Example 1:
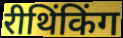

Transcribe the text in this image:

रीथिंकिंग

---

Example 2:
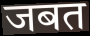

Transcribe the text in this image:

जबत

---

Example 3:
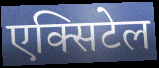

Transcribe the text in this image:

एक्सिटेल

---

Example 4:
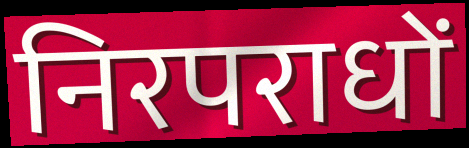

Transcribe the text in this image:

निरपराधों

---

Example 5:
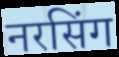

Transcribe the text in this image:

नरसिंग